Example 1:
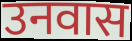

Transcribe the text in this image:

उनवास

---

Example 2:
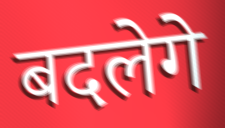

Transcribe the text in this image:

बदलेगे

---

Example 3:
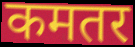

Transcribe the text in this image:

कमतर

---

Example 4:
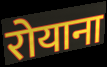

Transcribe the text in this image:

रोयाना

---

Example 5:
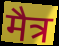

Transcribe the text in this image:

मैत्र